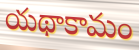
యథాకామం